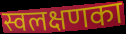
स्वलक्षणका